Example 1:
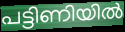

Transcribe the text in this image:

പട്ടിണിയിൽ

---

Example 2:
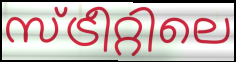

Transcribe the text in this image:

സ്ട്രീറ്റിലെ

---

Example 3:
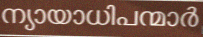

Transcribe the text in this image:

ന്യായാധിപന്മാർ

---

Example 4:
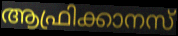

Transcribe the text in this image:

ആഫ്രിക്കാനസ്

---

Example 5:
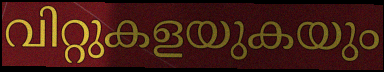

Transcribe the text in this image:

വിറ്റുകളയുകയും